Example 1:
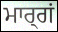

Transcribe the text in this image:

ਮਾਰ੍ਗਂ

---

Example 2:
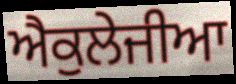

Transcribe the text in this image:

ਐਕੁਲੇਜੀਆ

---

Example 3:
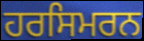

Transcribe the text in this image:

ਹਰਸਿਮਰਨ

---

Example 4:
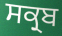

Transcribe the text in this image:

ਸਕ੍ਰਬ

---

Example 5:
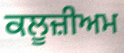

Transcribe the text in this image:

ਕਲੂਜ਼ੀਅਮ